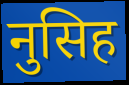
नुसिह